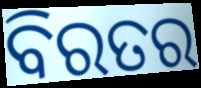
ବିରତର